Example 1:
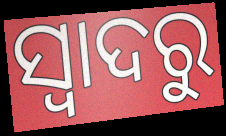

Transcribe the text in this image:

ସ୍ୱାଦରୁ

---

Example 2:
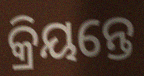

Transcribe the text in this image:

କ୍ରିୟନ୍ତେ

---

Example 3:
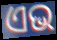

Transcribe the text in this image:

ଏଭ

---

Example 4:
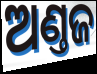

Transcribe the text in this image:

ଅଣ୍ତଜ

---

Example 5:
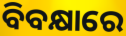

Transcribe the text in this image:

ବିବକ୍ଷାରେ